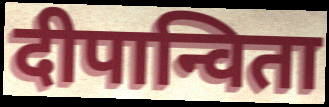
दीपान्विता